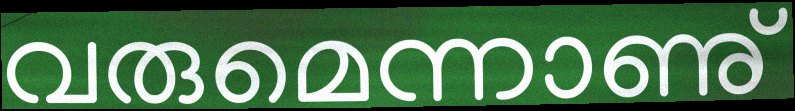
വരുമെന്നാണു്